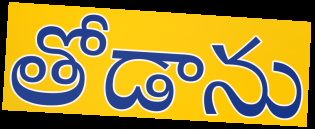
తోడాను